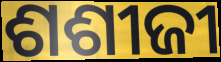
ଶଶୀଜୀ